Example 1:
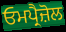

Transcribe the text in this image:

ਓਮਪ੍ਰੈਜ਼ੋਲ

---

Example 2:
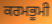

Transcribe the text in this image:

ਕਰਮਭੂਮੀ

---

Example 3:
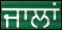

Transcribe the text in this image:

ਜਾਲਾਂ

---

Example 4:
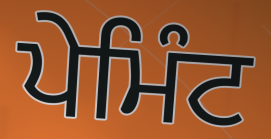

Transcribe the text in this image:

ਪੇਮਿੰਟ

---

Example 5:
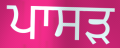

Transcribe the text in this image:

ਪਾਸੜ